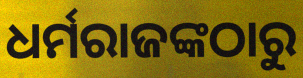
ଧର୍ମରାଜଙ୍କଠାରୁ